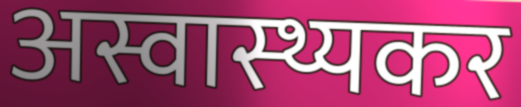
अस्वास्थ्यकर